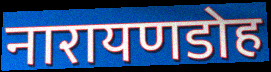
नारायणडोह